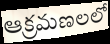
ఆక్రమణలలో